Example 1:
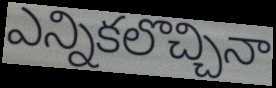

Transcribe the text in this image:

ఎన్నికలొచ్చినా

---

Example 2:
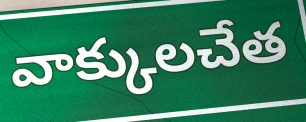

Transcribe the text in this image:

వాక్కులచేత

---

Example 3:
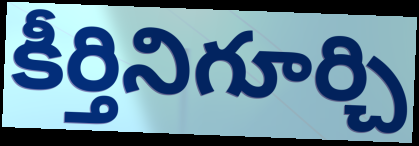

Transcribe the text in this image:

కీర్తినిగూర్చి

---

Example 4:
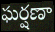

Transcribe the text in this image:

ఘర్షణా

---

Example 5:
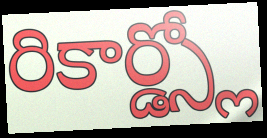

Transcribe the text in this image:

రికార్డ్స్లో